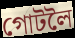
গোটলৈ